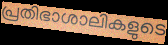
പ്രതിഭാശാലികളുടെ